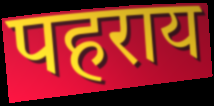
पहराय